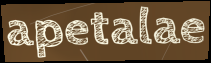
apetalae